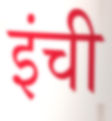
इंची